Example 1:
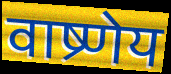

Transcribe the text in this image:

वाष्र्णेय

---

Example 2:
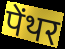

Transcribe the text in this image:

पेंथर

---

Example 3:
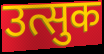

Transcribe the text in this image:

उत्सुक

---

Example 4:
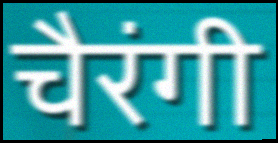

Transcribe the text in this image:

चैरंगी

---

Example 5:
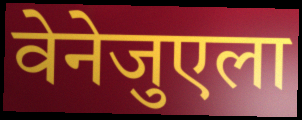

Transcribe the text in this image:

वेनेजुएला